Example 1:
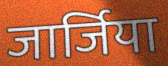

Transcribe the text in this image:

जार्जिया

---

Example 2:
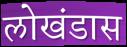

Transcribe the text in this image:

लोखंडास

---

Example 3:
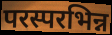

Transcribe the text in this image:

परस्परभिन्न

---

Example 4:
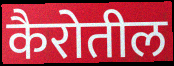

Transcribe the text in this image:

कैरोतील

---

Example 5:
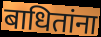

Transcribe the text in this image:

बाधितांना